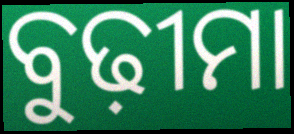
ବୁଢ଼ୀମା